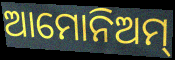
ଆମୋନିଅମ୍